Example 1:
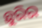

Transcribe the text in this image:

ଛୁରିର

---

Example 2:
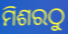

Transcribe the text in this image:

ମିଶରଠୁ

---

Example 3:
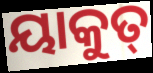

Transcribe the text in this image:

ୟାକୁତ୍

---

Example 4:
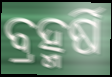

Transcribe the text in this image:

ବ୍ରହ୍ମର୍ଷି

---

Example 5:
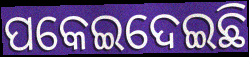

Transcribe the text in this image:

ପକେଇଦେଇଛି